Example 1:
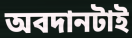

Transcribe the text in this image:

অবদানটাই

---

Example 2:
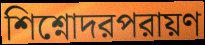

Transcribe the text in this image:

শিশ্নোদরপরায়ণ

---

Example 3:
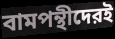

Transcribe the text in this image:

বামপন্থীদেরই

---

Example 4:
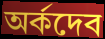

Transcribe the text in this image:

অর্কদেব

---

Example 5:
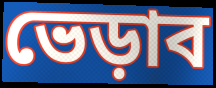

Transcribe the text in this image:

ভেড়াব